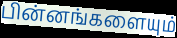
பின்னங்களையும்